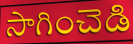
సాగించెడి